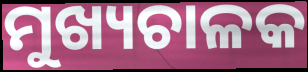
ମୁଖ୍ୟଚାଳକ